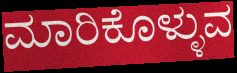
ಮಾರಿಕೊಳ್ಳುವ